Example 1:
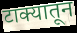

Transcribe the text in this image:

टाक्यातून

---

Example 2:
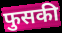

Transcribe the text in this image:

फुसकी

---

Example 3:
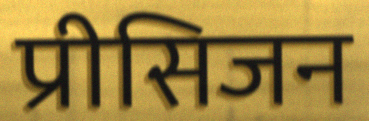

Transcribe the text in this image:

प्रीसिजन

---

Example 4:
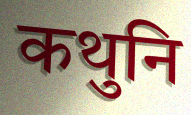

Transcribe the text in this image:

कथुनि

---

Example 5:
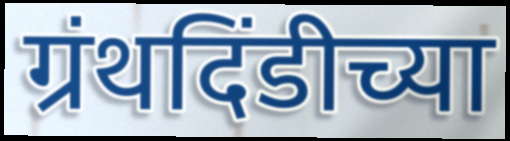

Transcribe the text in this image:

ग्रंथदिंडीच्या